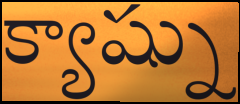
క్యాష్ను